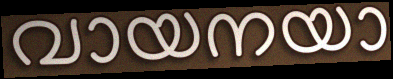
വായനയാ